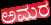
ಅಮರ